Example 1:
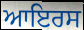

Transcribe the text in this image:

ਆਇਰਸ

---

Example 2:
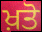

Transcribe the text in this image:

ਖ਼ਤੋ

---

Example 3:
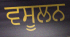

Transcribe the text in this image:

ਵਸੂਲਨ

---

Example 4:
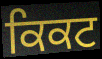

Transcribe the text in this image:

ਕਿਕਟ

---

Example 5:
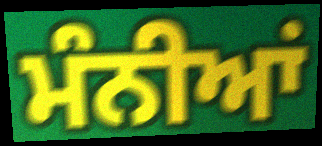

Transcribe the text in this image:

ਮੰਨੀਆਂ